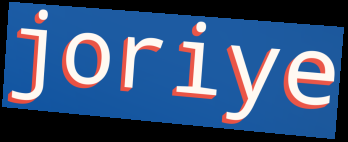
joriye